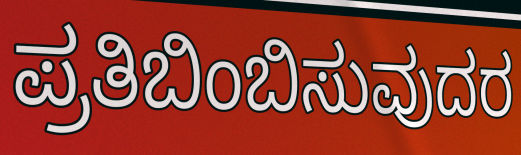
ಪ್ರತಿಬಿಂಬಿಸುವುದರ